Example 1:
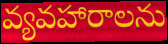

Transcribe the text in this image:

వ్యవహారాలను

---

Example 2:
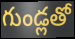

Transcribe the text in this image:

గుండ్లతో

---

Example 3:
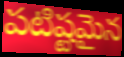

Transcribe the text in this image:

పటిష్టమైన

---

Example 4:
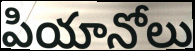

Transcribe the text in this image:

పియానోలు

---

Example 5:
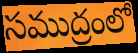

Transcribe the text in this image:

సముద్రంలో